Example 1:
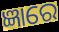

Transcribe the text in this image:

ଜ୍ଞାରେ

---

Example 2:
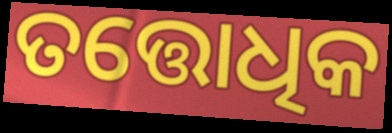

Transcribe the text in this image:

ତତ୍ତୋଧିକ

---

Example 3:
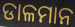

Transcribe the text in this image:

ଡାଳମାନ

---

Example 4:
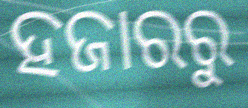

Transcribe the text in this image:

ହଜାରରୁ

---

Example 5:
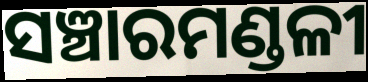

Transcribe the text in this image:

ସଞ୍ଚାରମଣ୍ଡଳୀ